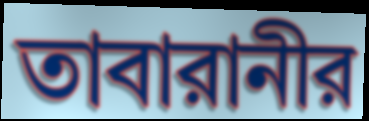
তাবারানীর